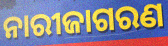
ନାରୀଜାଗରଣ